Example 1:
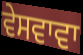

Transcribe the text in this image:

ਵੇਸਵਾਵਾ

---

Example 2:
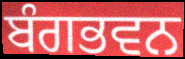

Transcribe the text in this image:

ਬੰਗਭਵਨ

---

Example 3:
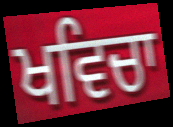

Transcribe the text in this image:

ਖਵਿਚਾ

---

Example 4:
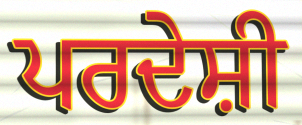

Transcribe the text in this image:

ਪਰਦੇਸ਼ੀ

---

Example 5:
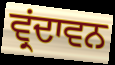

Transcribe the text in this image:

ਵ੍ਰਂਦਾਵਨ